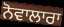
ਨੋਵਾਲਾਰਾ